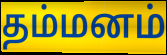
தம்மனம்